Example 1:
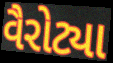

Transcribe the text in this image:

વૈરોટ્યા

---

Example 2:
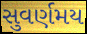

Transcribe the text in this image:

સુવર્ણમય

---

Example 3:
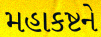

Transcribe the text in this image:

મહાકષ્ટને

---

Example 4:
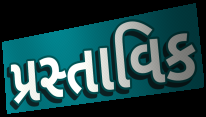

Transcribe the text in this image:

પ્રસ્તાવિક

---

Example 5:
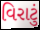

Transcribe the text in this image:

વિરાટું